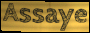
Assaye